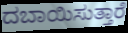
ದಬಾಯಿಸುತ್ತಾರೆ